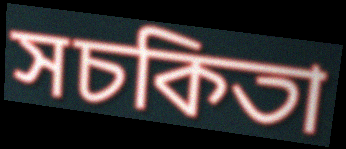
সচকিতা